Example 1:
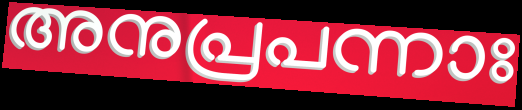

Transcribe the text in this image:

അനുപ്രപന്നാഃ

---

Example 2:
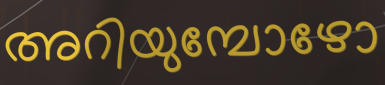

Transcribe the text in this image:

അറിയുമ്പോഴോ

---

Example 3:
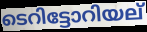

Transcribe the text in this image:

ടെറിട്ടോറിയല്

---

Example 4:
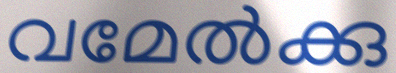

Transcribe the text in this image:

വമേൽക്കു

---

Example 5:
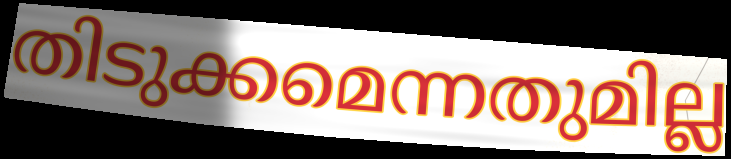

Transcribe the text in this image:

തിടുക്കമെന്നതുമില്ല